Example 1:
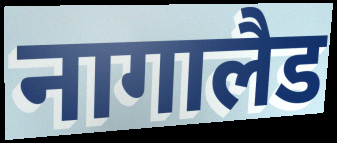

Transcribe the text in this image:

नागालैड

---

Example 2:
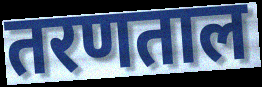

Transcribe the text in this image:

तरणताल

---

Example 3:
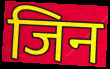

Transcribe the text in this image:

जिन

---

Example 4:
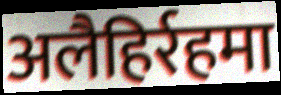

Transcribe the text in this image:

अलैहिर्रहमा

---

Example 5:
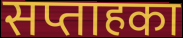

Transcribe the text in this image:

सप्ताहका